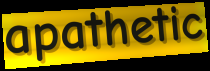
apathetic